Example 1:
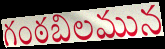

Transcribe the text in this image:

గంఠబిలమున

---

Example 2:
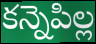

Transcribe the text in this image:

కన్నెపిల్ల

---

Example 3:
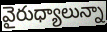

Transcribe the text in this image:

వైరుధ్యాలున్నా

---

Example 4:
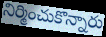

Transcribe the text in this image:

నిర్మించుకొన్నారు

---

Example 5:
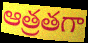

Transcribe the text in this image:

ఆత్రతగా